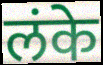
लंके